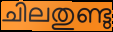
ചിലതുണ്ടു